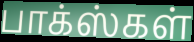
பாக்ஸ்கள்